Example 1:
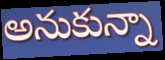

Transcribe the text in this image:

అనుకున్నా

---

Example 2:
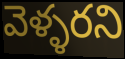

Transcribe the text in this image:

వెళ్ళరని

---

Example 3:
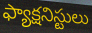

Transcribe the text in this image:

ఫ్యాక్షనిస్టులు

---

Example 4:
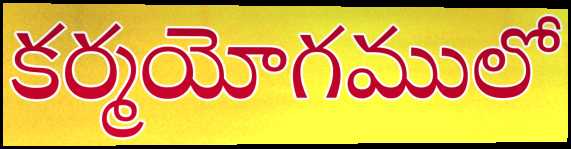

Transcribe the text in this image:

కర్మయోగములో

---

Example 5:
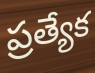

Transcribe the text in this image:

ప్రత్యేక